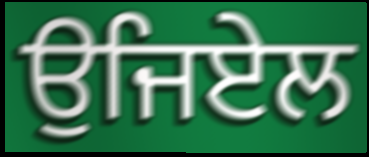
ਉਜਿਏਲ